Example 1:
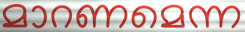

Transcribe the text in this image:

മാറണമെന്ന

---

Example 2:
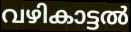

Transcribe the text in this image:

വഴികാട്ടൽ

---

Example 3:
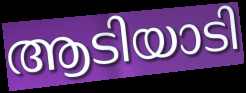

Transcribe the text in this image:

ആടിയാടി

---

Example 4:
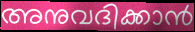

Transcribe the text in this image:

അനുവദിക്കാൻ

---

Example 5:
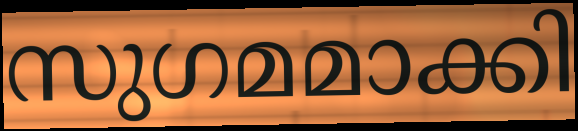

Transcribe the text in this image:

സുഗമമാക്കി